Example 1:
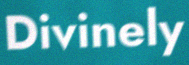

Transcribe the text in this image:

Divinely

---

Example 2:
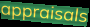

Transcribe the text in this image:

appraisals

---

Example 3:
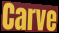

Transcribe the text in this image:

Carve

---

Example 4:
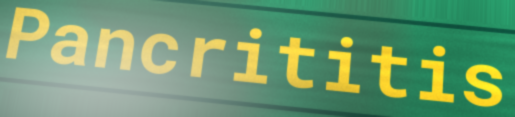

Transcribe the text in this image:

Pancrititis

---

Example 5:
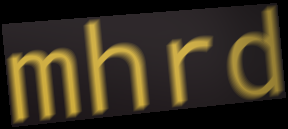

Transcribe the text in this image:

mhrd